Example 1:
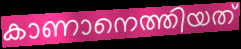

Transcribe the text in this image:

കാണാനെത്തിയത്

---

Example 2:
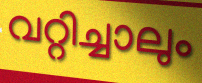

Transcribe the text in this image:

വറ്റിച്ചാലും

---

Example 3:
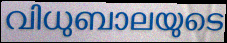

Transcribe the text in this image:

വിധുബാലയുടെ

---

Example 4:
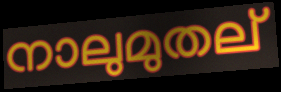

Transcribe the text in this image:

നാലുമുതല്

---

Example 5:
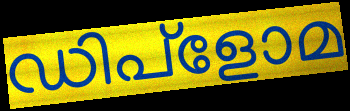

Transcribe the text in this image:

ഡിപ്ളോമ